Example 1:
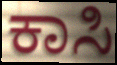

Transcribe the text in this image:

ಕಾಸಿ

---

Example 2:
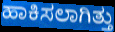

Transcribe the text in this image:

ಹಾಕಿಸಲಾಗಿತ್ತು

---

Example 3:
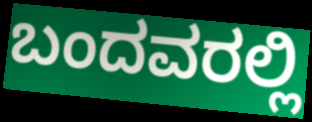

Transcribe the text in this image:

ಬಂದವರಲ್ಲಿ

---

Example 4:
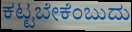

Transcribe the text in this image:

ಕಟ್ಟಬೇಕೆಂಬುದು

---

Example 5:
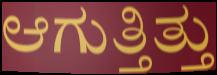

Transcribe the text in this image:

ಆಗುತ್ತಿತ್ತು